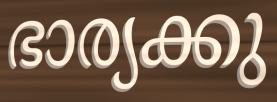
ഭാര്യക്കു